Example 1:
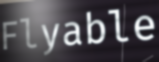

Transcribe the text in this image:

Flyable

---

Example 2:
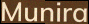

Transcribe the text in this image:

Munira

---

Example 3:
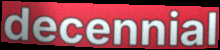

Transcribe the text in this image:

decennial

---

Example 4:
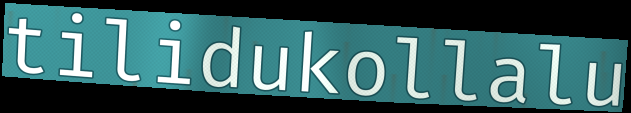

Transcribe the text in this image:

tilidukollalu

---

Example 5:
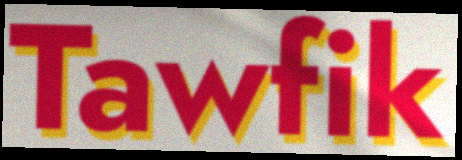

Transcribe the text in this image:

Tawfik